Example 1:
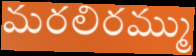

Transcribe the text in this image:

మరలిరమ్ము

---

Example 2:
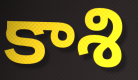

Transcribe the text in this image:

కాశి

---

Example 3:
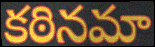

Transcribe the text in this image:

కఠినమా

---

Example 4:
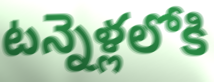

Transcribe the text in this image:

టన్నెళ్లలోకి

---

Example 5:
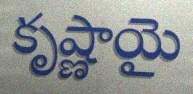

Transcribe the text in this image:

కృష్ణాయై